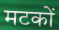
मटकों